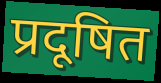
प्रदूषित